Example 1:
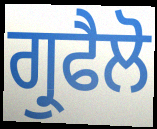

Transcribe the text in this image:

ਗ੍ਰੁਫੈਲੋ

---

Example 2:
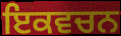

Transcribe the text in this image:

ਇਕਵਚਨ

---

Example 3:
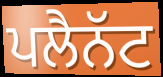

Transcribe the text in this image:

ਪਲੈਨੱਟ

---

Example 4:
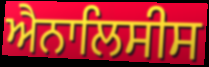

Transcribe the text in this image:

ਐਨਾਲਿਸੀਸ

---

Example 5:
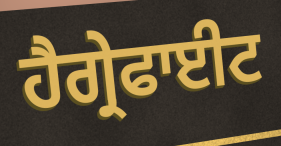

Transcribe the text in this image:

ਹੈਗ੍ਰੇਫਾਈਟ